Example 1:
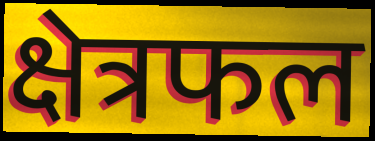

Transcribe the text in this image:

क्षेत्रफल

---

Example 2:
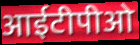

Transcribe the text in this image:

आईटीपीओ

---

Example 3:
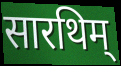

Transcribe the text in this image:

सारथिम्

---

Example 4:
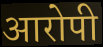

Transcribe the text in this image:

आरोपी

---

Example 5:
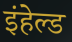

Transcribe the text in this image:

इंहेल्ड